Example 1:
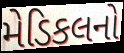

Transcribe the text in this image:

મેડિકલનો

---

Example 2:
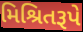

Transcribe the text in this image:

મિશ્રિતરૂપે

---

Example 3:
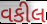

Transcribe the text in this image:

વકીલ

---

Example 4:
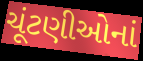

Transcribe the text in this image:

ચૂંટણીઓનાં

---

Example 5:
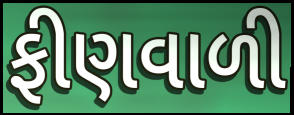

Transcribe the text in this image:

ફીણવાળી